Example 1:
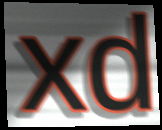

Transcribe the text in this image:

xd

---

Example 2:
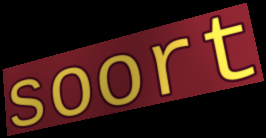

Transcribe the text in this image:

soort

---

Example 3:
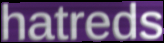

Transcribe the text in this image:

hatreds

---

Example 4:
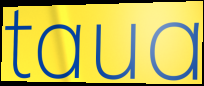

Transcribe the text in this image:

taua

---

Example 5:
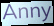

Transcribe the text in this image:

Anny